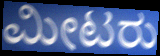
ಮೀಟರು